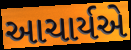
આચાર્યએ